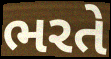
ભરતે